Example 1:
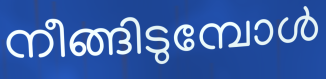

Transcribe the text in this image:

നീങ്ങിടുമ്പോൾ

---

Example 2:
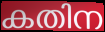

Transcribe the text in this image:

കതിന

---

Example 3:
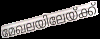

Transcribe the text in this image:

മേഖലയിലേയ്ക്ക്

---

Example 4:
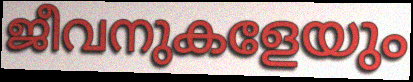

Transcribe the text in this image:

ജീവനുകളേയും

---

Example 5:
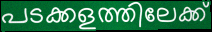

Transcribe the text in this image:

പടക്കളത്തിലേക്ക്